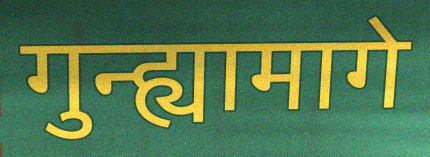
गुन्ह्यामागे